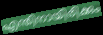
എന്തിനായിരിക്കും